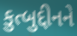
કુત્બુદ્દીનને